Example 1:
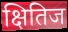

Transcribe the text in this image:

क्षितिज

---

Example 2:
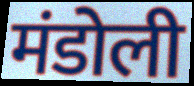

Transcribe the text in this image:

मंडोली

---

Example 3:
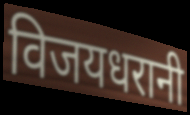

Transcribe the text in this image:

विजयधरानी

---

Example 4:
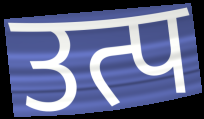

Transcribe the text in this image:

उत्प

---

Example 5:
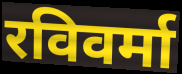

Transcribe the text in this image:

रविवर्मा